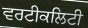
ਵਰਟੀਕਲਿਟੀ